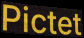
Pictet